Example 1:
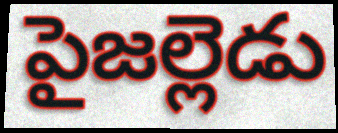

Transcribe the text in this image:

పైజల్లెడు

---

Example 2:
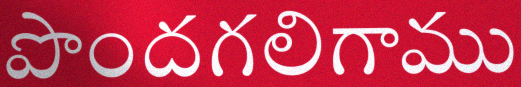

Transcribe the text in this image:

పొందగలిగాము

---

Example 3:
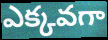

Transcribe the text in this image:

ఎక్కవగా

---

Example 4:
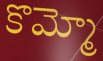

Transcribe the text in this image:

కొమ్మో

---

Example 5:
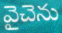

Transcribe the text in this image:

వైచెను